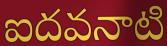
ఐదవనాటి